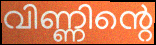
വിണ്ണിന്റെ